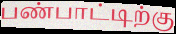
பண்பாட்டிற்கு